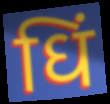
धिं